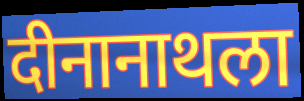
दीनानाथला